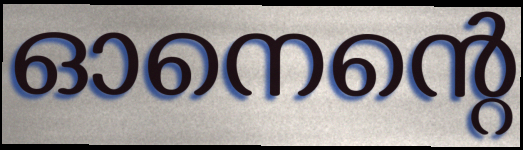
ഓനെന്റെ